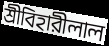
শ্রীবিহারীলাল